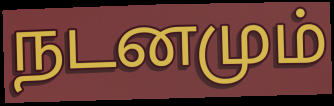
நடனமும்